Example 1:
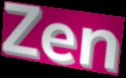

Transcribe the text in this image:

Zen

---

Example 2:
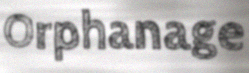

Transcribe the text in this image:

Orphanage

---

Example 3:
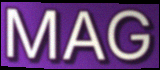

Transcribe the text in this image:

MAG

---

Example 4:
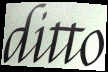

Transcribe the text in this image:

ditto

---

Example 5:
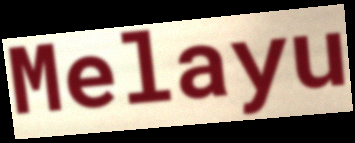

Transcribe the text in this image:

Melayu